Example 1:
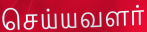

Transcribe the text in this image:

செய்யவளர்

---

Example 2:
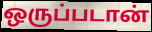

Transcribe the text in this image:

ஒருப்படான்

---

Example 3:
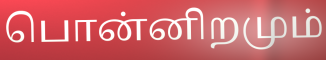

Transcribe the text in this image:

பொன்னிறமும்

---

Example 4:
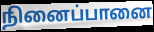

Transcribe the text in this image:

நினைப்பானை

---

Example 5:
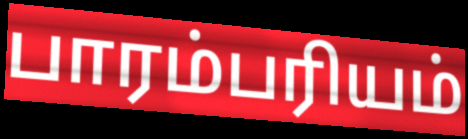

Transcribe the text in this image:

பாரம்பரியம்